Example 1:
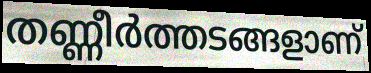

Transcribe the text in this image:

തണ്ണീർത്തടങ്ങളാണ്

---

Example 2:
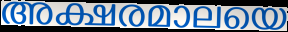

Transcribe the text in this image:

അക്ഷരമാലയെ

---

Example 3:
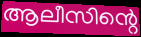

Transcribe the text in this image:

ആലീസിന്റെ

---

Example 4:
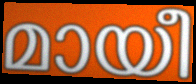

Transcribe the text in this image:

മായീ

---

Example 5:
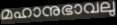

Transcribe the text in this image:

മഹാനുഭാവലു